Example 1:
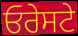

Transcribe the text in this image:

ਓਰੇਸਟੇ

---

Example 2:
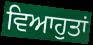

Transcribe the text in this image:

ਵਿਆਹੁਤਾਂ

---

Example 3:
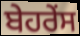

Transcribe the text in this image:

ਬੇਹਰੇਂਸ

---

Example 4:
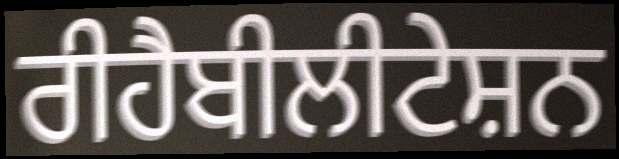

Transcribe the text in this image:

ਰੀਹੈਬੀਲੀਟੇਸ਼ਨ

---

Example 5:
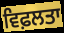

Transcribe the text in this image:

ਵਿਫ਼ਲਤਾ